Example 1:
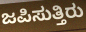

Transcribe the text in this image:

ಜಪಿಸುತ್ತಿರು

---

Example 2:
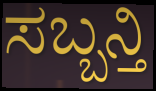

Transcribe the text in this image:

ಸಬ್ಬನ್ತಿ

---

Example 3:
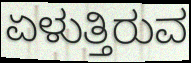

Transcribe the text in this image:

ಏಳುತ್ತಿರುವ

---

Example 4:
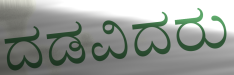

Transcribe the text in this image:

ದಡವಿದರು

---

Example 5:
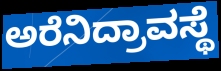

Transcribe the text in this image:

ಅರೆನಿದ್ರಾವಸ್ಥೆ